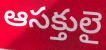
ఆసక్తులై